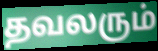
தவலரும்